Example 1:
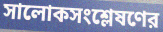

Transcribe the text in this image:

সালোকসংশ্লেষণের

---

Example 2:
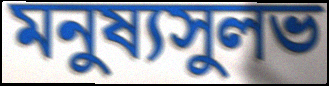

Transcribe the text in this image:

মনুষ্যসুলভ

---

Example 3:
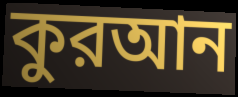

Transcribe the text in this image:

কুরআন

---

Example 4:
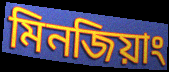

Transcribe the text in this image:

মিনজিয়াং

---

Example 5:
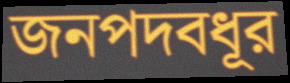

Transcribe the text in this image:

জনপদবধূর